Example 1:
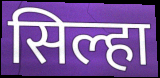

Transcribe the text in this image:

सिल्हा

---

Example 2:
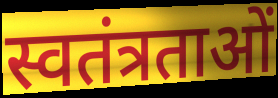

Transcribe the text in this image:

स्वतंत्रताओं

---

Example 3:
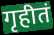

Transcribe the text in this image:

गृहीतं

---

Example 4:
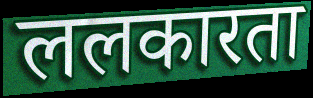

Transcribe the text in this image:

ललकारता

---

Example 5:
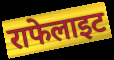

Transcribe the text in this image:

राफेलाइट